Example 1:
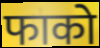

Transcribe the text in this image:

फाको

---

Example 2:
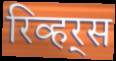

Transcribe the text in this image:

रिव्हर्स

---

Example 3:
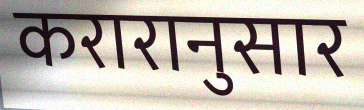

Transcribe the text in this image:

करारानुसार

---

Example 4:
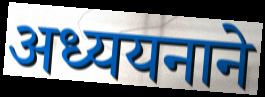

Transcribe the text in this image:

अध्ययनाने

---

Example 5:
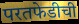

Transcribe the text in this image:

परतफेडीची